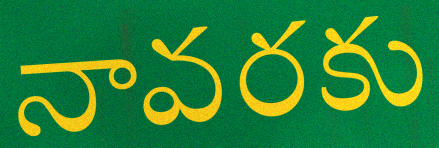
నావరకు